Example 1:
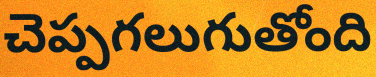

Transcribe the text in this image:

చెప్పగలుగుతోంది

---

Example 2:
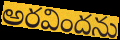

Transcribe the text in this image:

అరవిందను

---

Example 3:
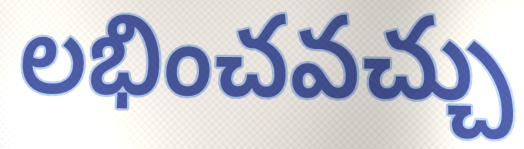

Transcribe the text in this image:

లభించవచ్చు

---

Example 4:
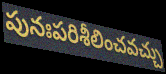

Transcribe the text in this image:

పునఃపరిశీలించవచ్చు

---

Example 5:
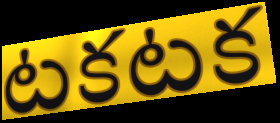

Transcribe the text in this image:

టకటక